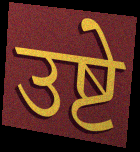
उष्टे